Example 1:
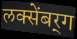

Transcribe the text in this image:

लक्सेंबर्ग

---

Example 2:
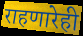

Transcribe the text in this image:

राहणारेही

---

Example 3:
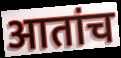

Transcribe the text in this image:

आतांच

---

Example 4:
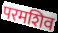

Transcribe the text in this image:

परमशिव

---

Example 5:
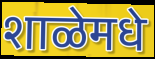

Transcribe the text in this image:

शाळेमधे